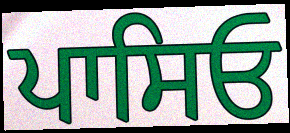
ਪਾਸਿਓ